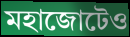
মহাজোটেও